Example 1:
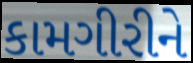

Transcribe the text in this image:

કામગીરીને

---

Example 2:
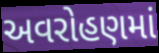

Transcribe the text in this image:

અવરોહણમાં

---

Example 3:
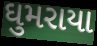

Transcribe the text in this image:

ઘુમરાયા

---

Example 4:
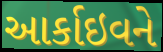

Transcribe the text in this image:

આર્કાઇવને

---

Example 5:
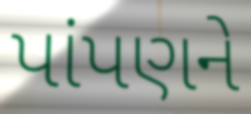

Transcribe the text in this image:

પાંપણને